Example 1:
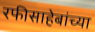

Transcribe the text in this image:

रफीसाहेबांच्या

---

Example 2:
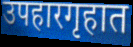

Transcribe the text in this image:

उपहारगृहात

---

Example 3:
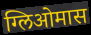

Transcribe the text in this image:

ग्लिओमास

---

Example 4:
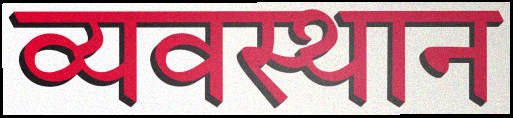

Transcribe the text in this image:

व्यवस्थान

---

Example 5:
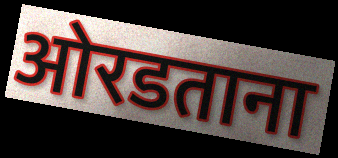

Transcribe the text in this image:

ओरडताना